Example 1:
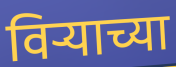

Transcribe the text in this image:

विर्‍याच्या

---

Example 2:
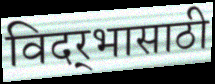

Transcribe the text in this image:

विदर्भासाठी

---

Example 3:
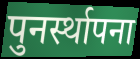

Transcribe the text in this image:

पुनर्स्थापना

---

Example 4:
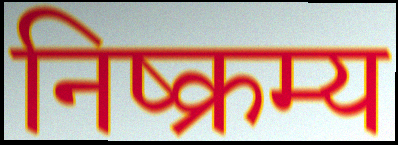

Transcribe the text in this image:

निष्क्रम्य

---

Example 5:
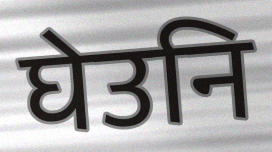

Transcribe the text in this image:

घेउनि